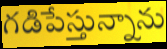
గడిపేస్తున్నాను